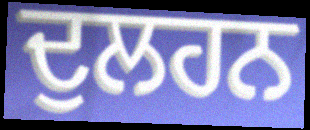
ਦੁਲਹਨ